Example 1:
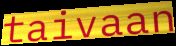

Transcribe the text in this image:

taivaan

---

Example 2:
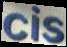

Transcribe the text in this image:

cis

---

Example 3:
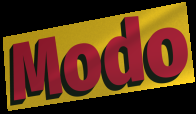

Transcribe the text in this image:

Modo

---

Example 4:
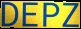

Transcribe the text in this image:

DEPZ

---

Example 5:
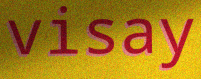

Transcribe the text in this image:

visay